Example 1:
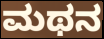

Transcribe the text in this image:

ಮಥನ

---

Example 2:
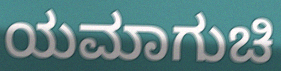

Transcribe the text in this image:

ಯಮಾಗುಚಿ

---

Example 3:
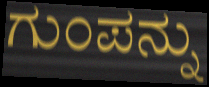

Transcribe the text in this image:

ಗುಂಪನ್ನು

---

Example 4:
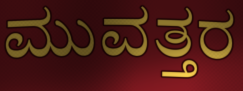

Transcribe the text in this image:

ಮುವತ್ತರ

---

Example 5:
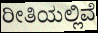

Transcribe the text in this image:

ರೀತಿಯಲ್ಲಿವೆ